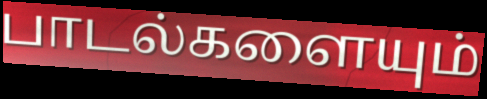
பாடல்களையும்